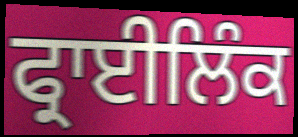
ਫ੍ਰਾਈਲਿੰਕ